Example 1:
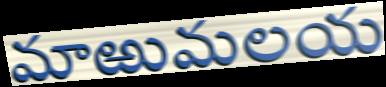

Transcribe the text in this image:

మాఱుమలయ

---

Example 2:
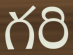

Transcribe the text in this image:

గరి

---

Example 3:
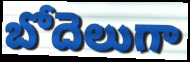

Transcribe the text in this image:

బోదెలుగా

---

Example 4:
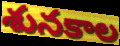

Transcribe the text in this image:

శునకాల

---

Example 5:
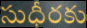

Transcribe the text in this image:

సుధీరకు